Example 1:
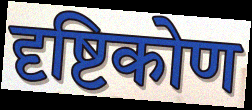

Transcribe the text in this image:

दृष्टिकोण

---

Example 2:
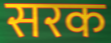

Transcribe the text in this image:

सरक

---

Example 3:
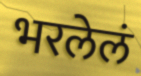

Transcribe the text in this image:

भरलेलं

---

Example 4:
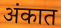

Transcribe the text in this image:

अंकात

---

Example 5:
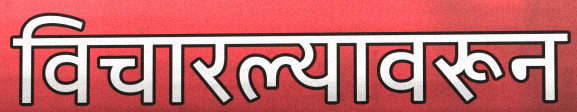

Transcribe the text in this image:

विचारल्यावरून